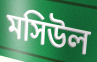
মসিউল